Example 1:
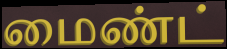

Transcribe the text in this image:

மைண்ட்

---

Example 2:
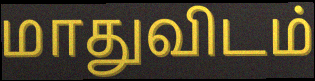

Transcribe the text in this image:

மாதுவிடம்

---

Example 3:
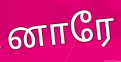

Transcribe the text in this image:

னாரே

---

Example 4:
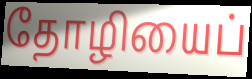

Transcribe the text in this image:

தோழியைப்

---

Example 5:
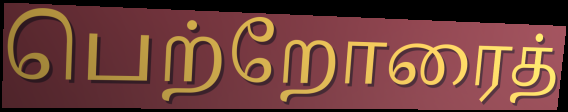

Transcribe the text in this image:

பெற்றோரைத்